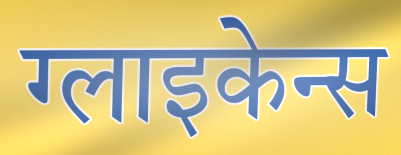
ग्लाइकेन्स